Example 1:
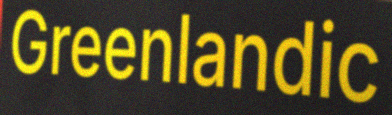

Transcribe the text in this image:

Greenlandic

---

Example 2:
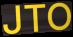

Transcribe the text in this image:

JTO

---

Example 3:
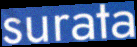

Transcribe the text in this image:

surata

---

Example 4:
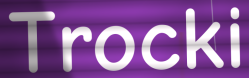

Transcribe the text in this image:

Trocki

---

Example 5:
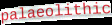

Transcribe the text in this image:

palaeolithic